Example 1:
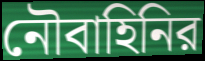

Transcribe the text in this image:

নৌবাহিনির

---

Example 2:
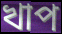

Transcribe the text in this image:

খাপ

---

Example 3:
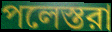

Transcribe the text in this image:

পলেস্তরা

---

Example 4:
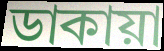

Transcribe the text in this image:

ডাকায়া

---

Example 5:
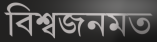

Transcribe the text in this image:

বিশ্বজনমত